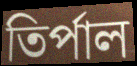
তিৰ্পাল